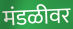
मंडळीवर